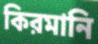
কিরমানি